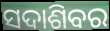
ସଦାଶିବର